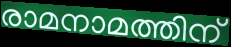
രാമനാമത്തിന്